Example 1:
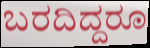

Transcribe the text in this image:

ಬರದಿದ್ದರೂ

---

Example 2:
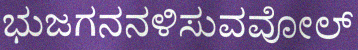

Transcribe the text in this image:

ಭುಜಗನನಳಿಸುವವೋಲ್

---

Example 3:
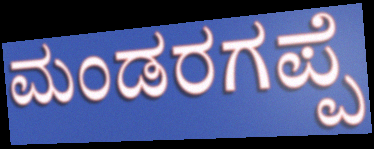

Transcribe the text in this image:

ಮಂಡರಗಪ್ಪೆ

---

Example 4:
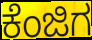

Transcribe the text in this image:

ಕೆಂಜಿಗ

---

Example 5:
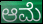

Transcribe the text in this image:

ಆಮೆ